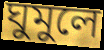
ঘুমুলে